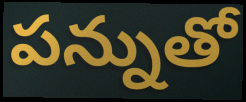
పన్నుతో